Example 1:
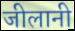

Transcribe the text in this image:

जीलानी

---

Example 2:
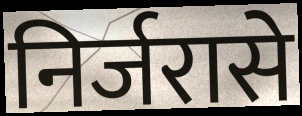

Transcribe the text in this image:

निर्जरासे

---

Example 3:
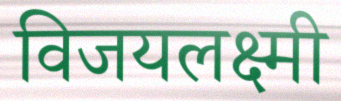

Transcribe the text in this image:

विजयलक्ष्मी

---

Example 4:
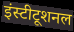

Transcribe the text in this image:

इंस्टीटूशनल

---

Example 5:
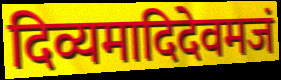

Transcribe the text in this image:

दिव्यमादिदेवमजं